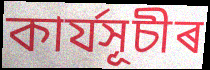
কাৰ্যসূচীৰ